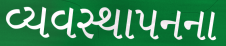
વ્યવસ્થાપનના